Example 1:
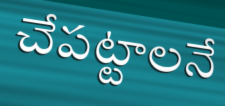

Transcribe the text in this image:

చేపట్టాలనే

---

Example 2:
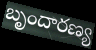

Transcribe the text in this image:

బృందారణ్య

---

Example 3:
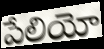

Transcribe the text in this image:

పేలియో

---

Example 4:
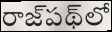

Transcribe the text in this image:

రాజ్‌పథ్‌లో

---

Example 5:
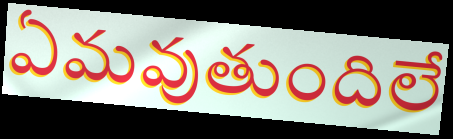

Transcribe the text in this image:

ఏమవుతుందిలే